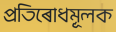
প্ৰতিৰোধমূলক